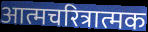
आत्मचरित्रात्मक